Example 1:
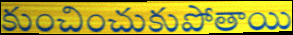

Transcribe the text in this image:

కుంచించుకుపోతాయి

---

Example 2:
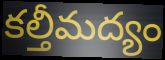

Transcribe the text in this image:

కల్తీమద్యం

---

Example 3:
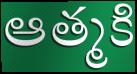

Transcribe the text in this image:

ఆత్మకి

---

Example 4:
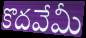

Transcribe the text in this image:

కొదవేమీ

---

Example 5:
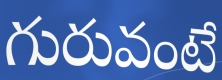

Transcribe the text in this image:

గురువంటే